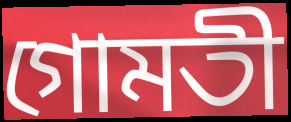
গোমতী